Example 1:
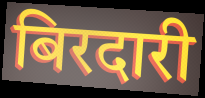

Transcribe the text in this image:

बिरदारी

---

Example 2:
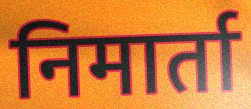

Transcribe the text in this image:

निमार्ता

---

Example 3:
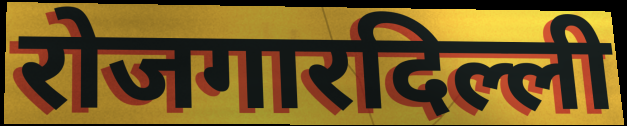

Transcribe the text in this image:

रोजगारदिल्ली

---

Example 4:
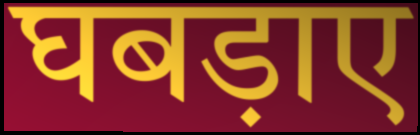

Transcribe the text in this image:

घबड़ाए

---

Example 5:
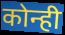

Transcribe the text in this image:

कोन्ही